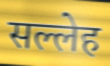
सल्लेह